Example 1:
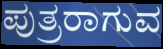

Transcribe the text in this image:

ಪುತ್ರರಾಗುವ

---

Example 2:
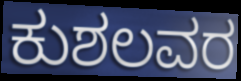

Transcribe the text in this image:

ಕುಶಲವರ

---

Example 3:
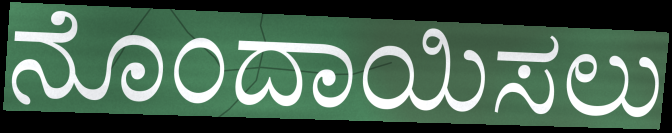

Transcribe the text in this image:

ನೊಂದಾಯಿಸಲು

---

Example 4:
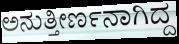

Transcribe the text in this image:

ಅನುತ್ತೀರ್ಣನಾಗಿದ್ದ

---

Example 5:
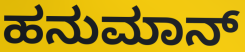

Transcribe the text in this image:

ಹನುಮಾನ್